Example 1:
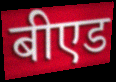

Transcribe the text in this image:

बीएड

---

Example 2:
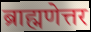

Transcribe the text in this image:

ब्राह्मणेत्तर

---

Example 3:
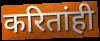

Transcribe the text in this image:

करितांही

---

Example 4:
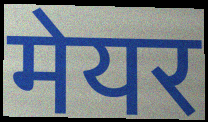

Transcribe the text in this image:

मेयर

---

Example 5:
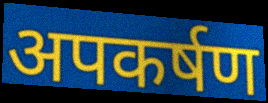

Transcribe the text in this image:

अपकर्षण